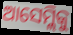
ଆସେମ୍ଲିକୁ